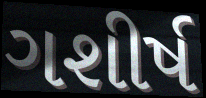
ગશીર્ષ